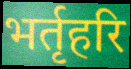
भर्तृहरि